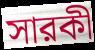
সারকী